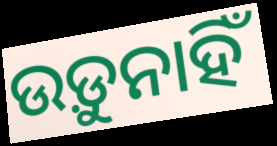
ଉଡ଼ୁନାହିଁ